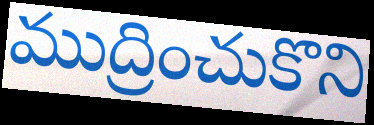
ముద్రించుకొని